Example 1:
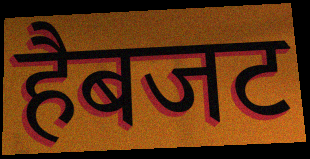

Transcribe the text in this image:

हैबजट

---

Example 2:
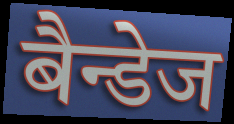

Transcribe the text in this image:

बैन्डेज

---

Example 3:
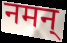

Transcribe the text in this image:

नमन्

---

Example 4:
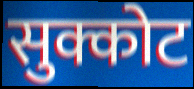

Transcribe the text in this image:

सुक्कोट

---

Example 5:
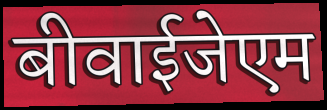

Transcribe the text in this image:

बीवाईजेएम